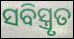
ସବିସ୍ତ୍ରୃତ